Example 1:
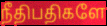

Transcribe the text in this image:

நீதிபதிகளே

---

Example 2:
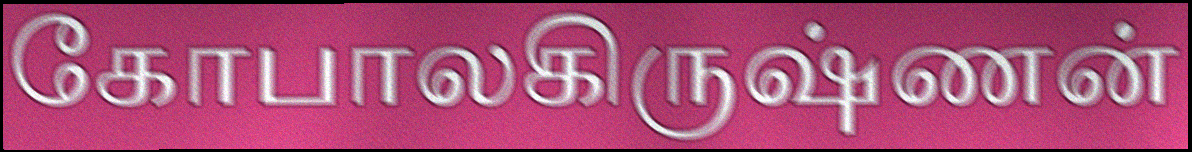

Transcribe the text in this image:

கோபாலகிருஷ்ணன்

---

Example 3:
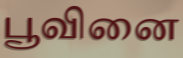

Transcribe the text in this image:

பூவினை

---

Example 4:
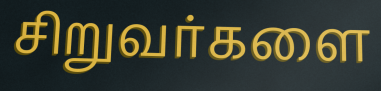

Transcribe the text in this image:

சிறுவர்களை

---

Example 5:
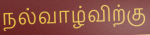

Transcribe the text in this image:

நல்வாழ்விற்கு